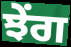
ਝੇਂਗ